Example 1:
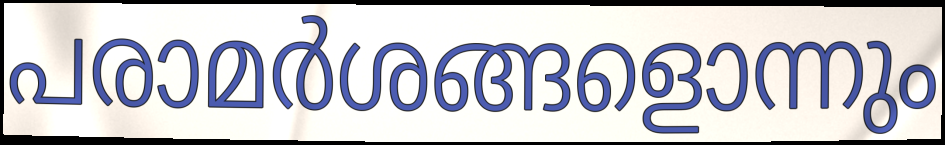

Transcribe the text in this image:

പരാമർശങ്ങളൊന്നും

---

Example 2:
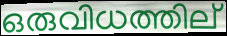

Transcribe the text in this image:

ഒരുവിധത്തില്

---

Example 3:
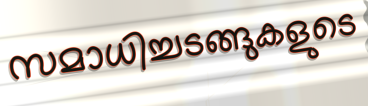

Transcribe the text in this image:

സമാധിച്ചടങ്ങുകളുടെ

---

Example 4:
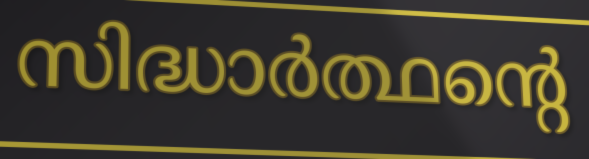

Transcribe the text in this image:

സിദ്ധാർത്ഥന്റെ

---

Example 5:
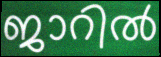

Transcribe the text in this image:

ജാറിൽ